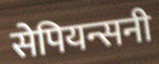
सेपियन्सनी